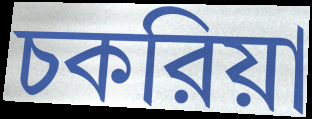
চকরিয়া